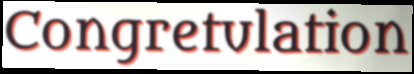
Congretulation